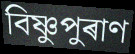
বিষ্ণুপুৰাণ